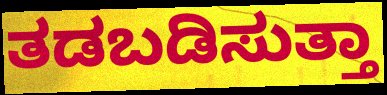
ತಡಬಡಿಸುತ್ತಾ